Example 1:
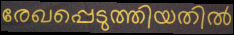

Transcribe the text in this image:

രേഖപ്പെടുത്തിയതിൽ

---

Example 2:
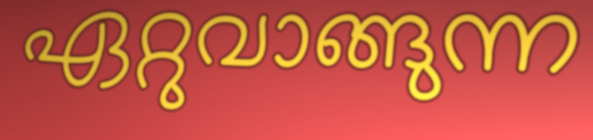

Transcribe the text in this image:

ഏറ്റുവാങ്ങുന്ന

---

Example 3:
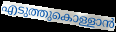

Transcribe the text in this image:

എടുത്തുകൊള്ളാൻ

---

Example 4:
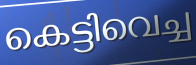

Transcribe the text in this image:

കെട്ടിവെച്ച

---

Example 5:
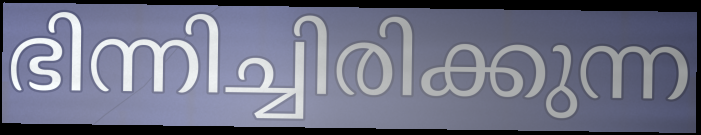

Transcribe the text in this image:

ഭിന്നിച്ചിരിക്കുന്ന